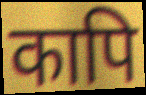
कापि